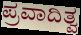
ಪ್ರವಾದಿತ್ವ